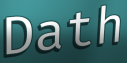
Dath